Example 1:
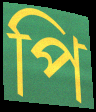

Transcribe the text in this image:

পি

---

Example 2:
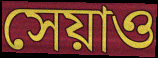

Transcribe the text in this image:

সেয়াও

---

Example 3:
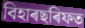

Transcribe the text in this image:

বিহাৰছৰিফত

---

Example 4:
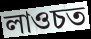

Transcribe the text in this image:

লাওচত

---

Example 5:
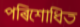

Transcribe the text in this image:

পৰিশোধিত